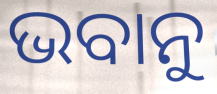
ଭବାନୁ